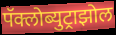
पॅक्लोब्युट्राझोल